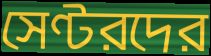
সেণ্টরদের